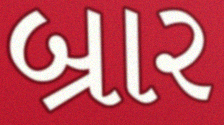
બ્રાર